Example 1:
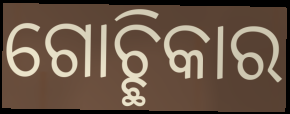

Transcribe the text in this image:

ଗୋଚ୍ଛିକାର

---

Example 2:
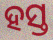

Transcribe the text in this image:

ହସ୍ତ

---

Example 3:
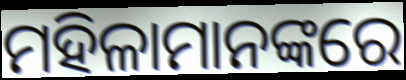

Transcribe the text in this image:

ମହିଳାମାନଙ୍କରେ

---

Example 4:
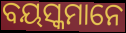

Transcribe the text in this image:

ବୟସ୍କମାନେ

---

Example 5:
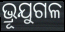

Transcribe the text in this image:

ଭ୍ରୂଯୁଗଳ